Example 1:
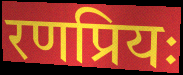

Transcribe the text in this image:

रणप्रियः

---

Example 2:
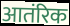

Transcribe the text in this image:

आतंरिक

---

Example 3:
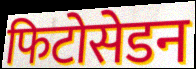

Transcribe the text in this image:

फिटोसेडन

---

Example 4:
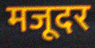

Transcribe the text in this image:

मजूदर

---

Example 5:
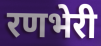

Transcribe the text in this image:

रणभेरी